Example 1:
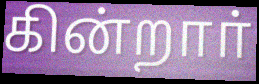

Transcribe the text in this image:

கின்றார்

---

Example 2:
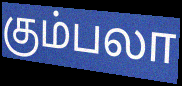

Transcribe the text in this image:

கும்பலா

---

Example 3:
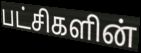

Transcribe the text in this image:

பட்சிகளின்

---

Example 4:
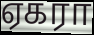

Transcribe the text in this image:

ஏகரா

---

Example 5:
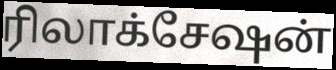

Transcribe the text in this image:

ரிலாக்சேஷன்